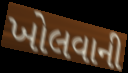
ખોલવાની